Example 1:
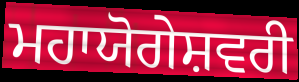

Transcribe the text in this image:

ਮਹਾਯੋਗੇਸ਼ਵਰੀ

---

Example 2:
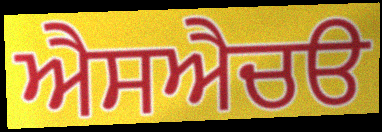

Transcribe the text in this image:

ਐਸਐਚੳ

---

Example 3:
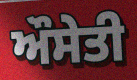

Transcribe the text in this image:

ਔਸੇਤੀ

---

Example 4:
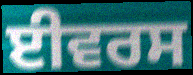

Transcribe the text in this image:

ਈਵਰਸ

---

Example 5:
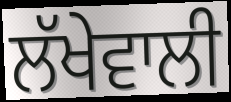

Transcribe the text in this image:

ਲੱਖੇਵਾਲੀ